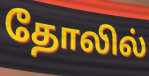
தோலில்